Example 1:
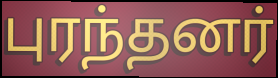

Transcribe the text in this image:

புரந்தனர்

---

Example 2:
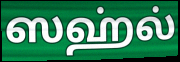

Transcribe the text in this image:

ஸஹ்ல்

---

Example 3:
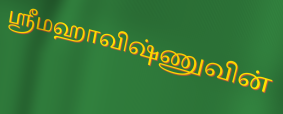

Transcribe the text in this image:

ஸ்ரீமஹாவிஷ்ணுவின்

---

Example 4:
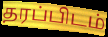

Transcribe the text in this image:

தரப்பிடம்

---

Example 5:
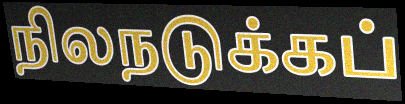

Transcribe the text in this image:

நிலநடுக்கப்